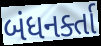
બંધનર્ક્તા